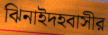
ঝিনাইদহবাসীর